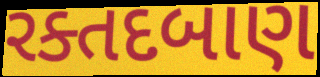
રક્તદબાણ